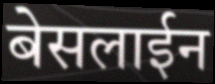
बेसलाईन